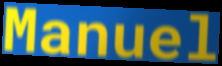
Manuel